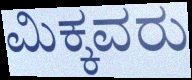
ಮಿಕ್ಕವರು